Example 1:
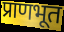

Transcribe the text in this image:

प्राणभूत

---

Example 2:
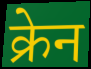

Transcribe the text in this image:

क्रेन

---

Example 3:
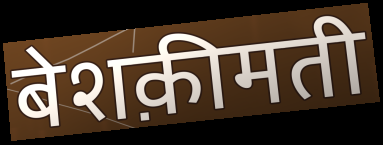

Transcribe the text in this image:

बेशक़ीमती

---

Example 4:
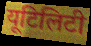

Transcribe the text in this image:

यूटिलिटी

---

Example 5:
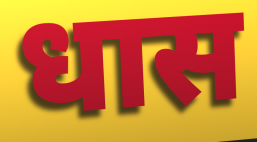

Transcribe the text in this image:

धास